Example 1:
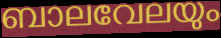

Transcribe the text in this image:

ബാലവേലയും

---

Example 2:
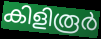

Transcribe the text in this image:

കിളിരൂർ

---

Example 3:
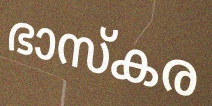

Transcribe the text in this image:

ഭാസ്കര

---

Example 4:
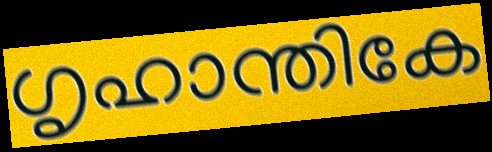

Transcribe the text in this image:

ഗൃഹാന്തികേ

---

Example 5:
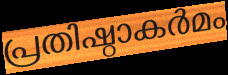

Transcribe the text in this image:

പ്രതിഷ്ഠാകർമം